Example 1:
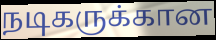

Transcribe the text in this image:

நடிகருக்கான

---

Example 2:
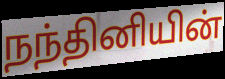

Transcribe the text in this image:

நந்தினியின்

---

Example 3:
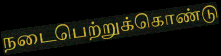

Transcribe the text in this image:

நடைபெற்றுக்கொண்டு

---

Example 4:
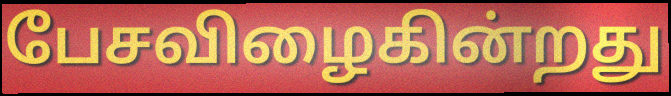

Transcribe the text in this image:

பேசவிழைகின்றது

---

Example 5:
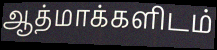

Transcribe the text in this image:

ஆத்மாக்களிடம்